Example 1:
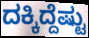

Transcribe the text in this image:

ದಕ್ಕಿದ್ದೆಷ್ಟು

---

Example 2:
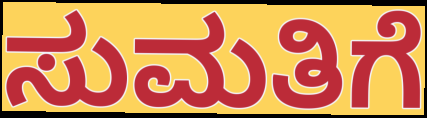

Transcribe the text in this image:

ಸುಮತಿಗೆ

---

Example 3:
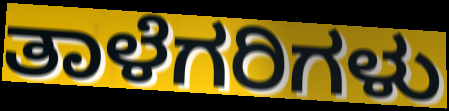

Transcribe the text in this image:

ತಾಳೆಗರಿಗಳು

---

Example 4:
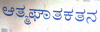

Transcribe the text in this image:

ಆತ್ಮಘಾತಕತನ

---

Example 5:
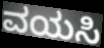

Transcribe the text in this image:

ವಯಸಿ